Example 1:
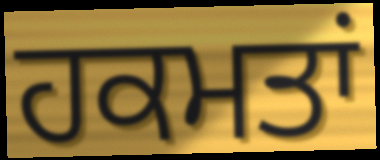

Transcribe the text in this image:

ਹਕਮਤਾਂ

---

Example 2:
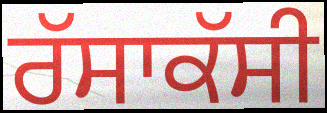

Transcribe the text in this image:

ਰੱਸਾਕੱਸੀ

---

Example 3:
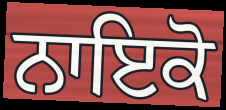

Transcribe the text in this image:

ਨਾਇਕੋ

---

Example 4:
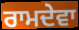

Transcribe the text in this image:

ਰਾਮਦੇਵਾ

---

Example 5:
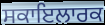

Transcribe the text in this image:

ਸਕਾਇਲਾਰਕ